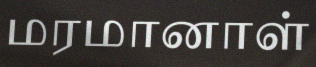
மரமானாள்